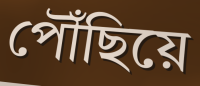
পৌঁছিয়ে